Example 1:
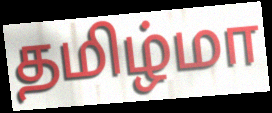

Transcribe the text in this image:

தமிழ்மா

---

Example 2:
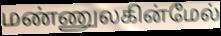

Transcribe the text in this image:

மண்ணுலகின்மேல்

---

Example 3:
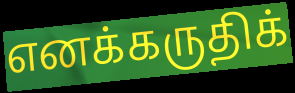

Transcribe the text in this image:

எனக்கருதிக்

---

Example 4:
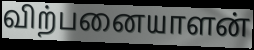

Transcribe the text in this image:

விற்பனையாளன்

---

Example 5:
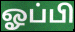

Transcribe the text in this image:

ஓப்பி